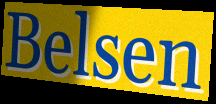
Belsen